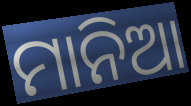
ମାନିଆ